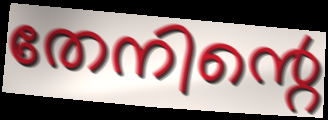
തേനിന്റെ